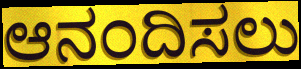
ಆನಂದಿಸಲು